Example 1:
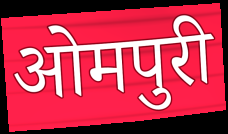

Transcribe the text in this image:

ओमपुरी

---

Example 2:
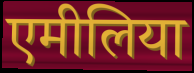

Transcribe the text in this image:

एमीलिया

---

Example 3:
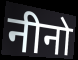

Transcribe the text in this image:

नीनो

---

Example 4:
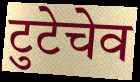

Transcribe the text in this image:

टुटेचेव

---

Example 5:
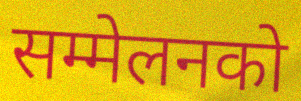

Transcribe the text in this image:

सम्मेलनको